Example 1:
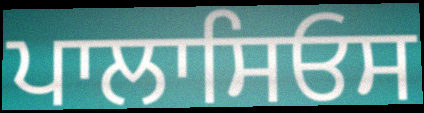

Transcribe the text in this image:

ਪਾਲਾਸਿਓਸ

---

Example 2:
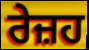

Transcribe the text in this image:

ਰੇਜ਼ਹ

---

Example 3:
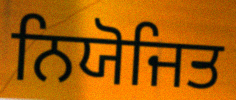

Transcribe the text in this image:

ਨਿਯੋਜਿਤ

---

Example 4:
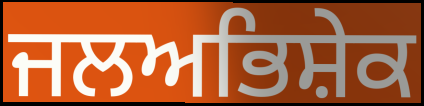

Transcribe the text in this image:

ਜਲਅਭਿਸ਼ੇਕ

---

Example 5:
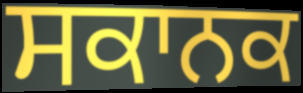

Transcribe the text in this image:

ਸਕਾਨਕ